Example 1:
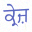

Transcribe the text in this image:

ਕ੍ਰੇਜ਼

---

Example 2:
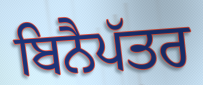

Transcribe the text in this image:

ਬਿਨੈਪੱਤਰ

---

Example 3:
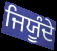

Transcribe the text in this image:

ਜਿਯੂੰਦੇ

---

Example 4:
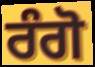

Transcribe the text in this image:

ਰੰਗੋ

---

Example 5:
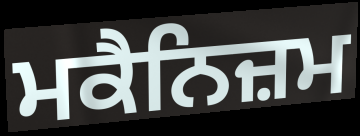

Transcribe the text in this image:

ਮਕੈਨਿਜ਼ਮ